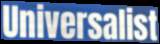
Universalist